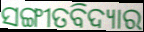
ସଙ୍ଗୀତବିଦ୍ୟାର